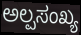
ಅಲ್ಪಸಂಖ್ಯ